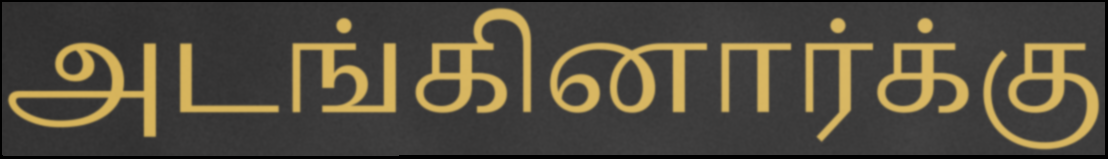
அடங்கினார்க்கு